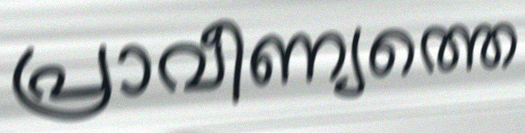
പ്രാവീണ്യത്തെ